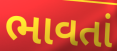
ભાવતાં